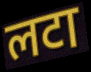
लटा